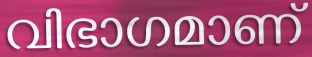
വിഭാഗമാണ്